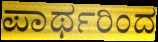
ಪಾರ್ಥರಿಂದ